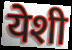
येशी